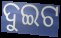
ଦୁଇଟ